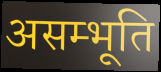
असम्भूति